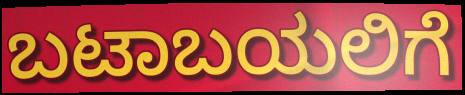
ಬಟಾಬಯಲಿಗೆ